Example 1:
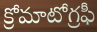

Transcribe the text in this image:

క్రోమాటోగ్రఫీ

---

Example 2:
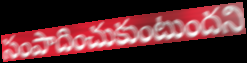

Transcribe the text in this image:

సంపాదించుకుంటుందని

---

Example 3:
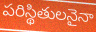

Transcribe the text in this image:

పరిస్థితులనైనా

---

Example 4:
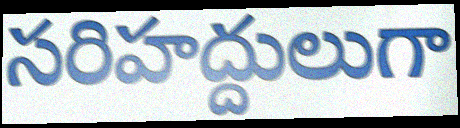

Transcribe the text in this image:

సరిహద్దులుగా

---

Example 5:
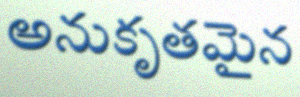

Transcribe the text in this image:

అనుకృతమైన